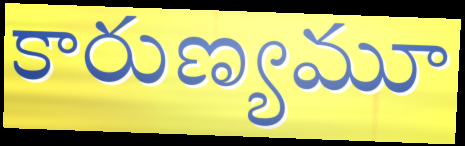
కారుణ్యమూ